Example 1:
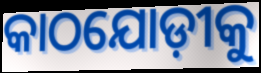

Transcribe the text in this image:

କାଠଯୋଡ଼ୀକୁ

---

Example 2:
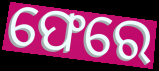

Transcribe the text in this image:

ଫେରେ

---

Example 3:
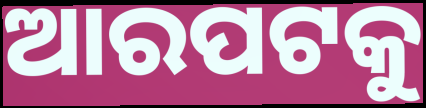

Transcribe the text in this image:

ଆରପଟକୁ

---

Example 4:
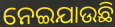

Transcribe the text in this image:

ନେଇଯାଉଛି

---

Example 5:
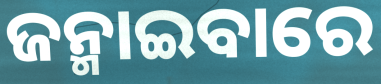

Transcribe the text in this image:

ଜନ୍ମାଇବାରେ